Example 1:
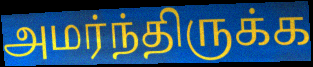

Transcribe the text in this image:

அமர்ந்திருக்க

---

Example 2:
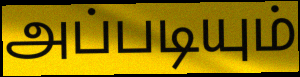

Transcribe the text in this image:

அப்படியும்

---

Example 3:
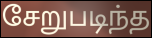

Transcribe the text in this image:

சேறுபடிந்த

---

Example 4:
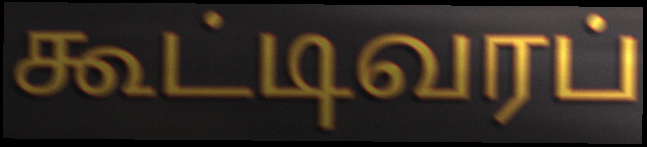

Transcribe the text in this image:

கூட்டிவரப்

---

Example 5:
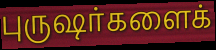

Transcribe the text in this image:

புருஷர்களைக்